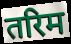
तरिम